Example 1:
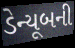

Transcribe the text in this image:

ડેન્યૂબની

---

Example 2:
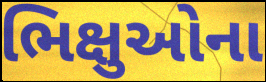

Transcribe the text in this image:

ભિક્ષુઓના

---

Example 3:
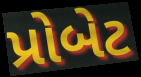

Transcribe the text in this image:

પ્રોબેટ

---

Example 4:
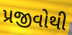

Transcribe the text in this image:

પ્રજીવોથી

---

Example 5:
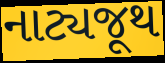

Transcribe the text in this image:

નાટ્યજૂથ